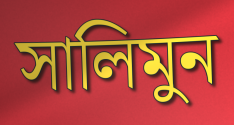
সালিমুন